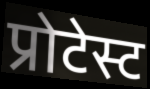
प्रोटेस्ट